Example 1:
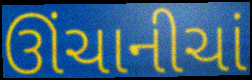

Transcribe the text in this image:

ઊંચાનીચાં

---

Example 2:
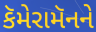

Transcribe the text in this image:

કૅમેરામૅનને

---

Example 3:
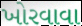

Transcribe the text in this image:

ખોરવાવા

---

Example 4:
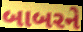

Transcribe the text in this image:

બાબરને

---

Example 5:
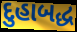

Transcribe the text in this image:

દુહાબદ્ધ